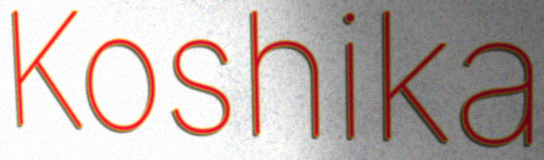
Koshika